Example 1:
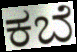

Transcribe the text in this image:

ಕಬೆ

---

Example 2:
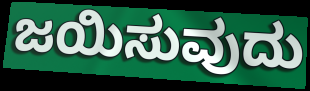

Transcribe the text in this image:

ಜಯಿಸುವುದು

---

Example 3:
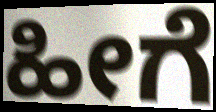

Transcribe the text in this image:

ಹೀಗೆ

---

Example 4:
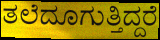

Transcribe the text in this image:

ತಲೆದೂಗುತ್ತಿದ್ದರೆ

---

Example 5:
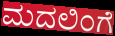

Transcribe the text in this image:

ಮದಲಿಂಗೆ